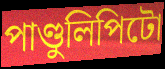
পাণ্ডুলিপিটো